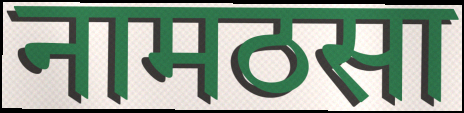
नामठसा